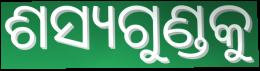
ଶସ୍ୟଗୁଣ୍ଡକୁ